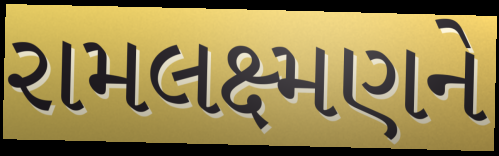
રામલક્ષ્મણને